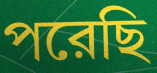
পরেছি